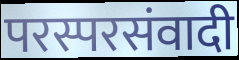
परस्परसंवादी